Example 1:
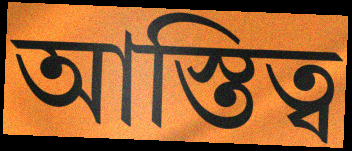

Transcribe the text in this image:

আস্তিত্ব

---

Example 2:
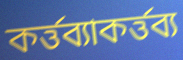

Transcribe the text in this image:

কর্ত্তব্যাকর্ত্তব্য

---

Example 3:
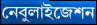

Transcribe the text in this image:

নেবুলাইজেশন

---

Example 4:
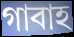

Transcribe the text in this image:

গাবাহ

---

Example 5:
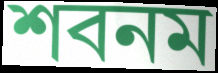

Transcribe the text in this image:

শবনম